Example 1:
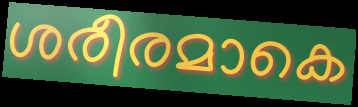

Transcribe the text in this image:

ശരീരമാകെ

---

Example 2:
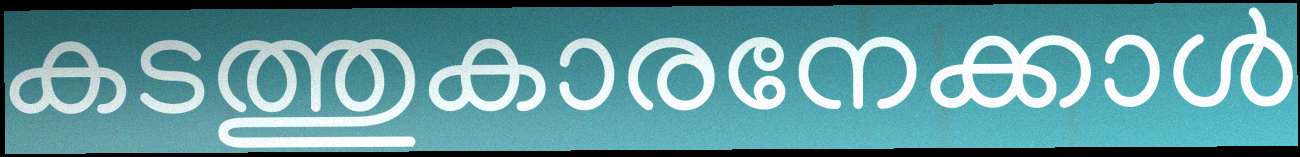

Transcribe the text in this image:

കടത്തുകാരനേക്കാൾ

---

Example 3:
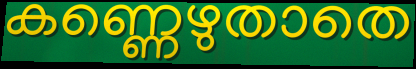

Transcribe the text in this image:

കണ്ണെഴുതാതെ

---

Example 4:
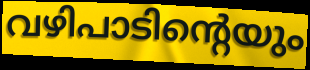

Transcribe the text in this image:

വഴിപാടിന്റെയും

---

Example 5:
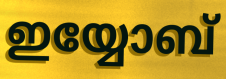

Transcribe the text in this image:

ഇയ്യോബ്